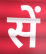
सें